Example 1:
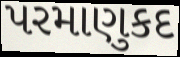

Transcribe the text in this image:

પરમાણુકદ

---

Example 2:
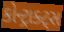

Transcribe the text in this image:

કોન્ટ્રાક્ટ્સ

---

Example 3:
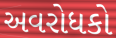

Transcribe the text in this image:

અવરોધકો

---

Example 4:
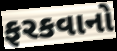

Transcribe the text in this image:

ફરકવાનો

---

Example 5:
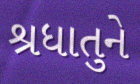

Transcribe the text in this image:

શ્રધાતુને